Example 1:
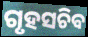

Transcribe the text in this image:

ଗୃହସଚିବ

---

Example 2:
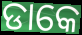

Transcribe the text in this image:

ଡାକେ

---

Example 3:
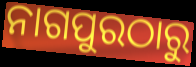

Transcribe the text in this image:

ନାଗପୁରଠାରୁ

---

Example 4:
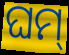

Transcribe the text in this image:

ଘମ୍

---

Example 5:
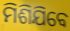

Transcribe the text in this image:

ମିଶିଯିବେ